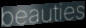
beauties